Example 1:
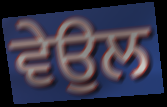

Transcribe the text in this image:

ਵੇਉਲ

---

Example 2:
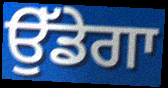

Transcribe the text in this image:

ਉੱਡੇਗਾ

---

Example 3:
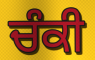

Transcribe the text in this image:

ਚੰਕੀ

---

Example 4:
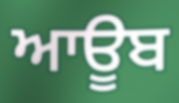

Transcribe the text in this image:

ਆਊਬ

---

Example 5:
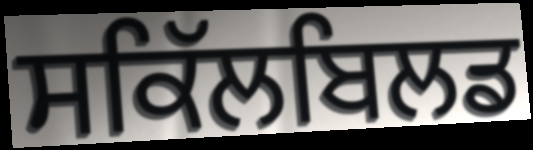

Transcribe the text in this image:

ਸਕਿੱਲਬਿਲਡ